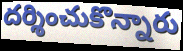
దర్శించుకొన్నారు